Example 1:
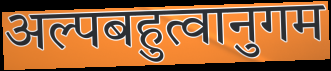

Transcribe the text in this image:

अल्पबहुत्वानुगम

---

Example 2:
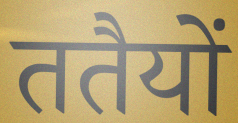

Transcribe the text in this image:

ततैयों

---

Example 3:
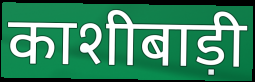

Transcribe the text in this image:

काशीबाड़ी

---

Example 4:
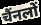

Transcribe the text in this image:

चैंनलों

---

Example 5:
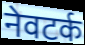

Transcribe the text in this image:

नेवटर्क